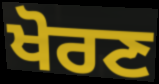
ਖੋਰਣ